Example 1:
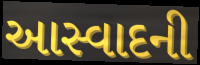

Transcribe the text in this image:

આસ્વાદની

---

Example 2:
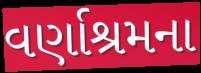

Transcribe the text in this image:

વર્ણાશ્રમના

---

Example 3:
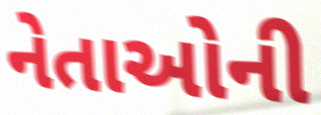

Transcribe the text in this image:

નેતાઓની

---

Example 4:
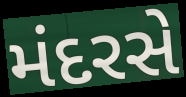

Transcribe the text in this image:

મંદરસે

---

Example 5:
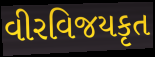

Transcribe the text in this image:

વીરવિજયકૃત